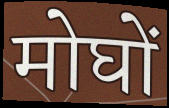
मोघों